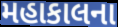
મહાકાલના